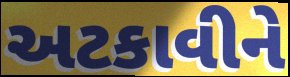
અટકાવીને